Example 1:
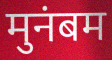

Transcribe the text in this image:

मुनंबम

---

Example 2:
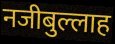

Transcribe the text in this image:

नजीबुल्लाह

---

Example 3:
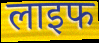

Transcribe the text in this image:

लाइफ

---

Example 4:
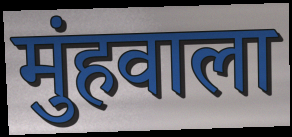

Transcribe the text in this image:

मुंहवाला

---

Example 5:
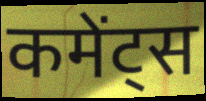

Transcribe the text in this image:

कमेंट्स